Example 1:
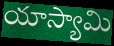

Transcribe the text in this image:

యాస్యామి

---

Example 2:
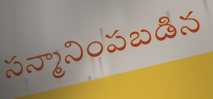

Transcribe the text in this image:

సన్మానింపబడిన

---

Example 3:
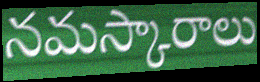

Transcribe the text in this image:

నమస్కారాలు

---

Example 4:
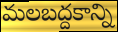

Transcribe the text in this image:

మలబద్దకాన్ని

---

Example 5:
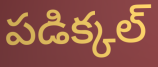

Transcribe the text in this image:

పడిక్కల్